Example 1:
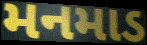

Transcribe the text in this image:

મનમાડ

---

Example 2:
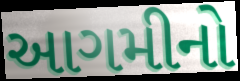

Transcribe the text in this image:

આગમીનો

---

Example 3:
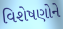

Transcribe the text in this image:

વિશેષણોને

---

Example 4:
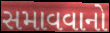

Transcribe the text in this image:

સમાવવાનો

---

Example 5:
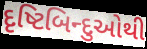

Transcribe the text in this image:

દૃષ્ટિબિન્દુઓથી